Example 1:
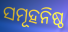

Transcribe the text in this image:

ସମୂହନିଷ୍ଠ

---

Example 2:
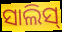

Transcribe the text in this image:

ସାଲିସ୍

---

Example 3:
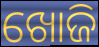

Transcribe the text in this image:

ଖୋଜି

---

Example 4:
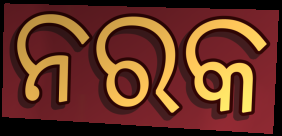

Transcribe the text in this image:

ନରକ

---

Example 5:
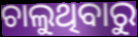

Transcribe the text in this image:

ଚାଲୁଥିବାରୁ